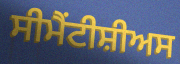
ਸੀਮੈਂਟੀਸ਼ੀਅਸ